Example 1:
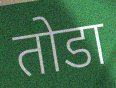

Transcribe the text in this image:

तोडा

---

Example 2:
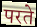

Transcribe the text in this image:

परते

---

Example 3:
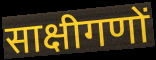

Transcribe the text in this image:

साक्षीगणों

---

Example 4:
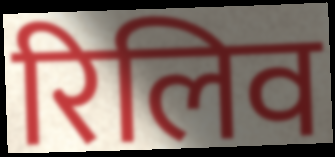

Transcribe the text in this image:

रिलिव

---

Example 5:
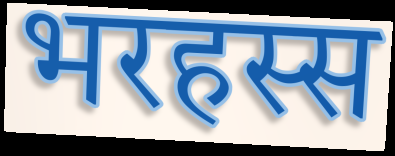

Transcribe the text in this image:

भरहस्स